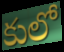
కులో